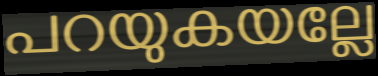
പറയുകയല്ലേ